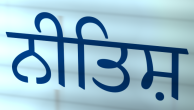
ਨੀਤਿਸ਼